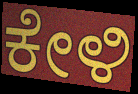
ಕೇಳಿ